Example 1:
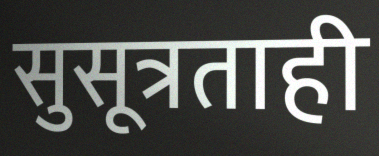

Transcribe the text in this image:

सुसूत्रताही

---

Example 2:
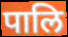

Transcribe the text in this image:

पालि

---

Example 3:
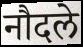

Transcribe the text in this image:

नौदले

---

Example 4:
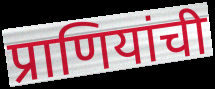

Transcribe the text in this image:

प्राणियांची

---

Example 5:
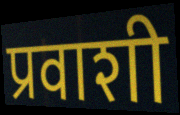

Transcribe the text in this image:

प्रवाशी